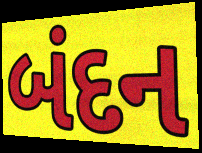
બંદન